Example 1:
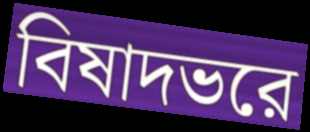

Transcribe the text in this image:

বিষাদভরে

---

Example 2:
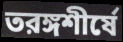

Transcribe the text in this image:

তরঙ্গশীর্ষে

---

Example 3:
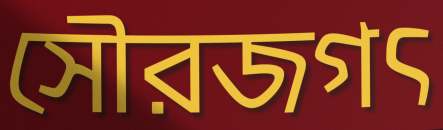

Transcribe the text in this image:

সৌরজগৎ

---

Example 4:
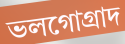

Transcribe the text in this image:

ভলগোগ্রাদ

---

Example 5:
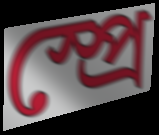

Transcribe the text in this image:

স্প্রে